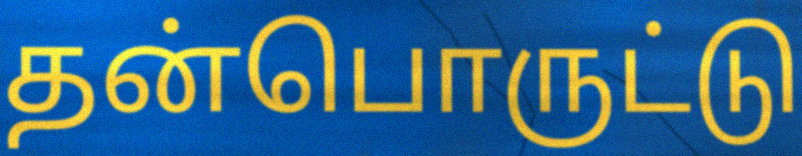
தன்பொருட்டு